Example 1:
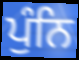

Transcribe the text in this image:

ਪੁੰਨਿ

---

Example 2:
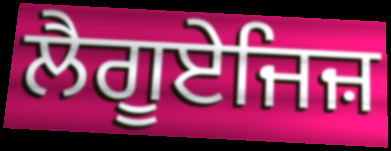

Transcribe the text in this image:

ਲੈਗੂਏਜਿਜ਼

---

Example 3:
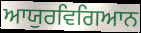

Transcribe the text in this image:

ਆਯੁਰਵਿਗਿਆਨ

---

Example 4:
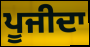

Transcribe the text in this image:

ਪੂਜੀਦਾ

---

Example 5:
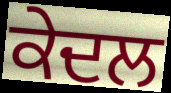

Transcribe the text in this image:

ਕੇਦਲ